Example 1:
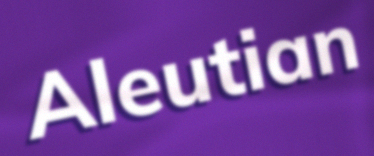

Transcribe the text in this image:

Aleutian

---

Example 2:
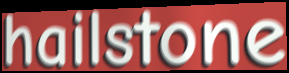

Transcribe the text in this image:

hailstone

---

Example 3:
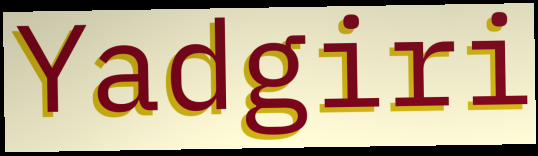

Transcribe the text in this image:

Yadgiri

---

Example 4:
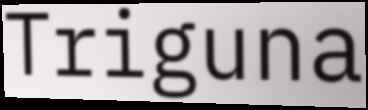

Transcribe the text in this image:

Triguna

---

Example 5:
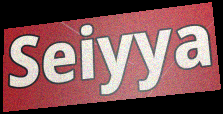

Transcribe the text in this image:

Seiyya